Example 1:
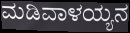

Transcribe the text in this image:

ಮಡಿವಾಳಯ್ಯನ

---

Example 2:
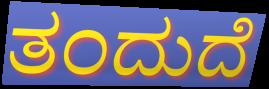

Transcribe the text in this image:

ತಂದುದೆ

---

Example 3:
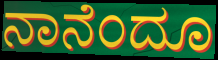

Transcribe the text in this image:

ನಾನೆಂದೂ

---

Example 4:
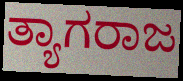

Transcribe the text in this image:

ತ್ಯಾಗರಾಜ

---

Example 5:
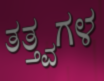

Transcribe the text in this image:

ತತ್ತ್ವಗಳ